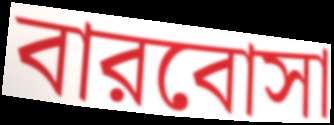
বারবোসা